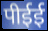
पीईई